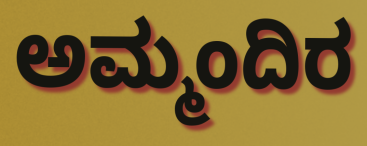
ಅಮ್ಮಂದಿರ